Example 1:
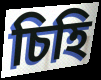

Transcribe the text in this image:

চিহি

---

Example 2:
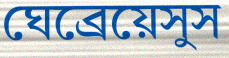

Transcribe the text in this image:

ঘেব্রেয়েসুস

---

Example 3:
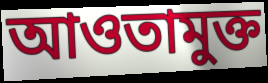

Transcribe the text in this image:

আওতামুক্ত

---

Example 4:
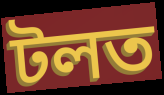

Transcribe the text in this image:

টলত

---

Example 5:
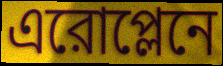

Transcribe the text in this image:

এরোপ্লেনে